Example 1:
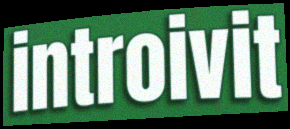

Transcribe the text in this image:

introivit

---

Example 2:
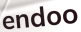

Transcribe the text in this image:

endoo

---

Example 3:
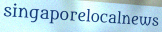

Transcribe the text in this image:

singaporelocalnews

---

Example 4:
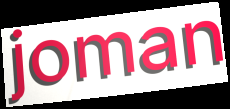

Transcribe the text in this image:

joman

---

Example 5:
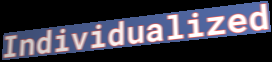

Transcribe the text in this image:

Individualized